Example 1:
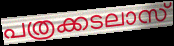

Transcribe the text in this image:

പത്രക്കടലാസ്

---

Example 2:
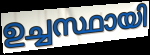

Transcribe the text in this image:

ഉച്ചസ്ഥായി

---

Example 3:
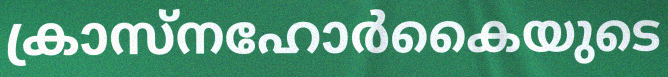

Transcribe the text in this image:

ക്രാസ്നഹോർകൈയുടെ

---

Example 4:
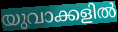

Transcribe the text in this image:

യുവാക്കളിൽ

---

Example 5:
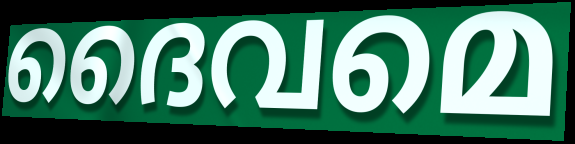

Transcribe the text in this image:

ദൈവമെ